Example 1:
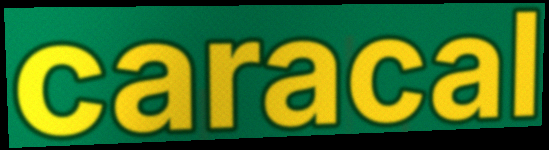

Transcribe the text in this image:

caracal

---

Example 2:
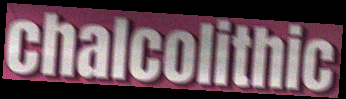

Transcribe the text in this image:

chalcolithic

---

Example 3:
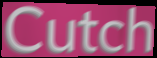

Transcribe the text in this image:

Cutch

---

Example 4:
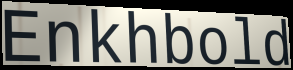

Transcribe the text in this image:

Enkhbold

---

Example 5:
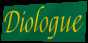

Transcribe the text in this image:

Diologue